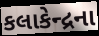
કલાકેન્દ્રના